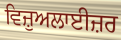
ਵਿਜ਼ੁਅਲਾਈਜ਼ਰ